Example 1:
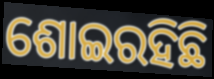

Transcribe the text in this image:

ଶୋଇରହିଛି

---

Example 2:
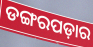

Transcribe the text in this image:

ଡଙ୍ଗରପଡ଼ାର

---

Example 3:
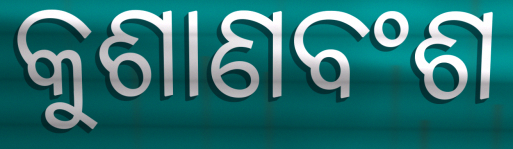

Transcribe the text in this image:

କୁଶାଣବଂଶ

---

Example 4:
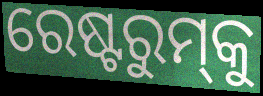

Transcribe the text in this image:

ରେଷ୍ଟରୁମ୍‌କୁ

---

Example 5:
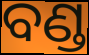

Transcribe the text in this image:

ବଣ୍ଡ